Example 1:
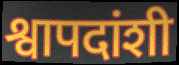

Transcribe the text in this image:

श्वापदांशी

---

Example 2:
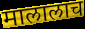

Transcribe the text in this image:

मालालाच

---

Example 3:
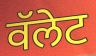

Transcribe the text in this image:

वॅलेट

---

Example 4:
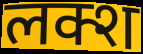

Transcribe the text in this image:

लक्श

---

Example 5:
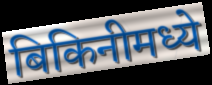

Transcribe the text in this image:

बिकिनीमध्ये